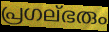
പ്രഗല്ഭരും